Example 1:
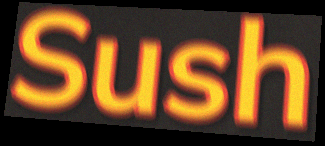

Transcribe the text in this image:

Sush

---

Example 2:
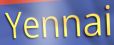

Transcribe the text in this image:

Yennai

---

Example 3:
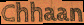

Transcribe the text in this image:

Chhaan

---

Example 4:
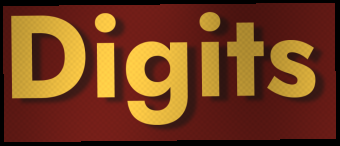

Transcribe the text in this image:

Digits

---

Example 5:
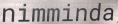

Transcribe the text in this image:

nimminda